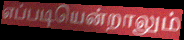
எப்படியென்றாலும்